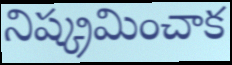
నిష్క్రమించాక